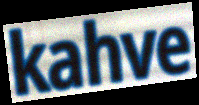
kahve